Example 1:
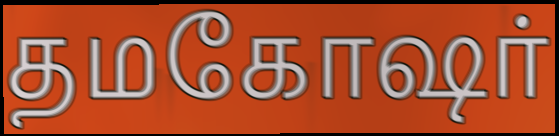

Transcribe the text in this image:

தமகோஷர்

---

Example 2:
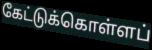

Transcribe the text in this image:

கேட்டுக்கொள்ளப்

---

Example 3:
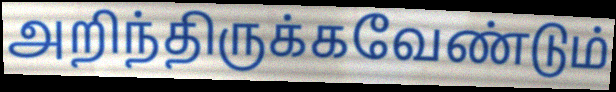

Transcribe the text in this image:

அறிந்திருக்கவேண்டும்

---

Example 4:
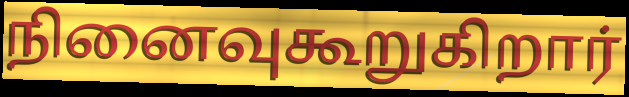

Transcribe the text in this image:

நினைவுகூறுகிறார்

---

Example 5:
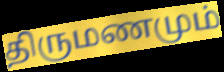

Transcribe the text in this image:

திருமணமும்